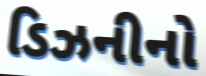
ડિઝનીનો